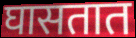
घासतात